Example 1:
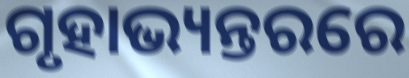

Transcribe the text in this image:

ଗୃହାଭ୍ୟନ୍ତରରେ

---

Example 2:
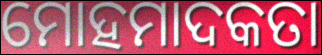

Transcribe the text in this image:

ମୋହମାଦକତା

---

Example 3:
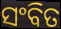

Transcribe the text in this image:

ସଂବିତ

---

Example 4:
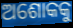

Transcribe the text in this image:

ଅଶୋକକୁ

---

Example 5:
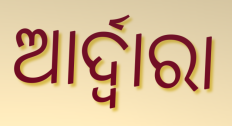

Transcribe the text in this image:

ଆର୍ଦ୍ୱାରା